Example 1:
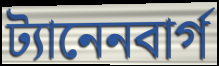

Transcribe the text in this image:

ট্যানেনবার্গ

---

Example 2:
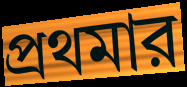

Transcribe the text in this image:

প্রথমার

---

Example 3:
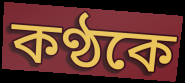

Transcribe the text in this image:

কণ্ঠকে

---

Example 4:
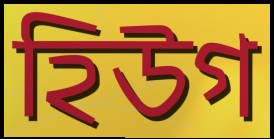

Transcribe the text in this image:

হিউগ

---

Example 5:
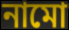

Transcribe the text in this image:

নামো